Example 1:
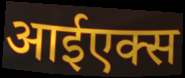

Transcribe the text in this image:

आईएक्स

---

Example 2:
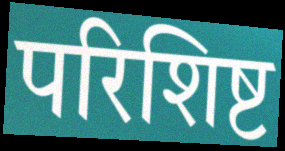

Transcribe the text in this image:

परिशिष्ट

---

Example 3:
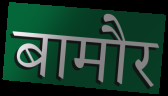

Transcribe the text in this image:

बामौर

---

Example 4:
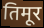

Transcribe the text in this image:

तिमूर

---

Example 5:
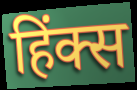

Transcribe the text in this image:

हिंक्स